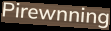
Pirewnning